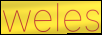
weles